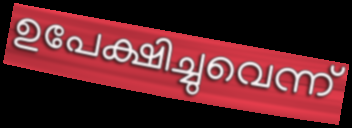
ഉപേക്ഷിച്ചുവെന്ന്